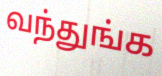
வந்துங்க